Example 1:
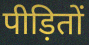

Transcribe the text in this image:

पीड़ितों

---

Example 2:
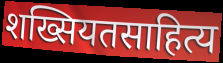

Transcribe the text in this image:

शख्सियतसाहित्य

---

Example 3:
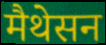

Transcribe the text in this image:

मैथेसन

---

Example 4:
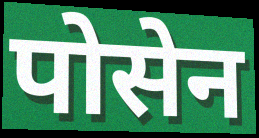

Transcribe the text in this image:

पोसेन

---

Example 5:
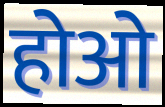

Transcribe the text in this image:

होओ